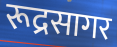
रूद्रसागर